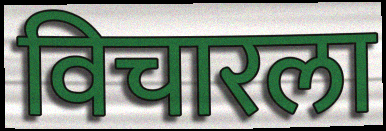
विचारला